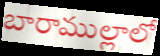
బారాముల్లాలో